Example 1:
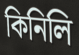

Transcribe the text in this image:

কিনিলি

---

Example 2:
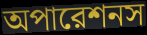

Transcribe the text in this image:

অপারেশনস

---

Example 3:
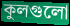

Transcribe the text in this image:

কুলগুলো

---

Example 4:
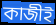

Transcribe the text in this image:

কাজীই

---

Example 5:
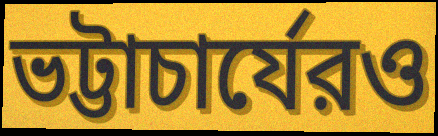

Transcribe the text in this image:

ভট্টাচার্যেরও